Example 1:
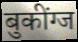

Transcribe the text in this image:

बुकींग्ज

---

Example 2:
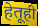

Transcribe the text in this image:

हेतूही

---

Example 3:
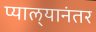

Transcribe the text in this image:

प्याल्यानंतर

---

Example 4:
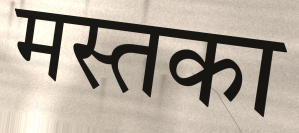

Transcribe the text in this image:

मस्तका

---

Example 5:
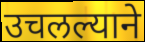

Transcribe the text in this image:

उचलल्याने